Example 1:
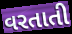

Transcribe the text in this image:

વરતાતી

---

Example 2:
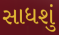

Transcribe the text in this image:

સાધશું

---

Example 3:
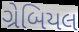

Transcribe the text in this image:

ગ્રેબિયલ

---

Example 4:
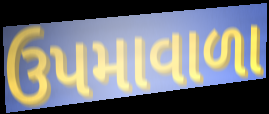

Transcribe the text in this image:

ઉપમાવાળા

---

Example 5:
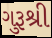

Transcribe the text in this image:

ગુરૂશ્રી